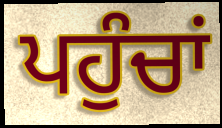
ਪਹੁੰਚਾਂ